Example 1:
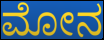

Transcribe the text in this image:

ಮೋನ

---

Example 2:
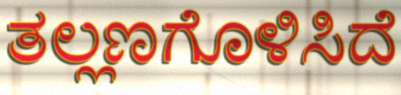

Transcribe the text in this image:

ತಲ್ಲಣಗೊಳಿಸಿದೆ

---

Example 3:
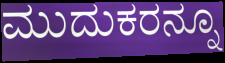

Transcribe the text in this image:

ಮುದುಕರನ್ನೂ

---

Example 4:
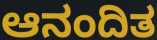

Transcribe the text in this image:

ಆನಂದಿತ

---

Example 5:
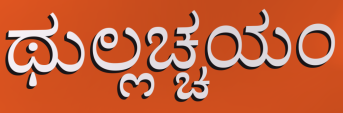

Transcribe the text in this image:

ಥುಲ್ಲಚ್ಚಯಂ